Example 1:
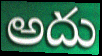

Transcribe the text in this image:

అదు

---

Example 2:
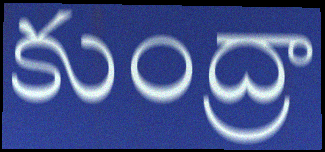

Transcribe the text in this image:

కుంద్రా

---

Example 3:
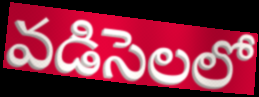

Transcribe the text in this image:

వడిసెలలో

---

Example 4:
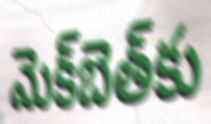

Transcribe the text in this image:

మెక్‌బెత్‌కు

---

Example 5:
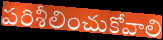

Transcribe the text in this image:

పరిశీలించుకోవాలి